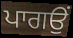
ਪਾਗਉਂ